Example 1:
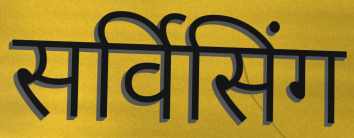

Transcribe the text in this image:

सर्विसिंग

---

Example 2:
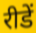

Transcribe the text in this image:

रीडें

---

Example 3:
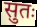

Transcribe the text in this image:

सुतः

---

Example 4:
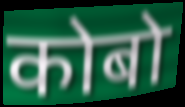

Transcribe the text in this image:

कोबो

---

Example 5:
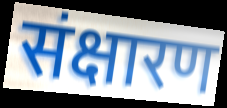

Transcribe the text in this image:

संक्षारण